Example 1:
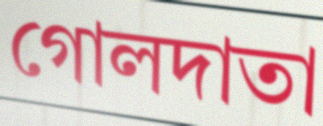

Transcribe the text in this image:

গোলদাতা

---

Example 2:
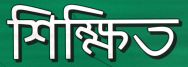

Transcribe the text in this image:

শিক্ষিত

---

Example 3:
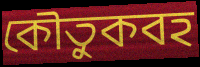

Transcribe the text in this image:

কৌতুকবহ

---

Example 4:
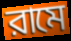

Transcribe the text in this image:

রামে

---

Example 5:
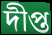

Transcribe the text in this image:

দীপ্ত